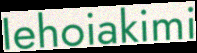
Iehoiakimi